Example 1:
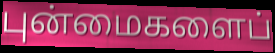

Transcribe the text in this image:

புன்மைகளைப்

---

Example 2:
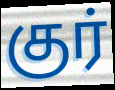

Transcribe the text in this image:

குர்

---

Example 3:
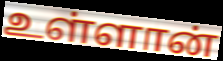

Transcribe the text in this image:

உள்ளான்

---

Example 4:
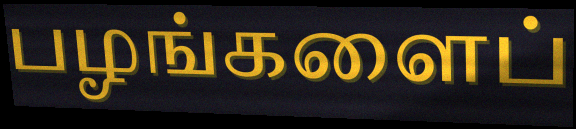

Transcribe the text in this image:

பழங்களைப்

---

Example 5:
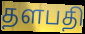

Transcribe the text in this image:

தளபதி